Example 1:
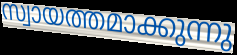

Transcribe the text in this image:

സ്വായത്തമാക്കുന്നു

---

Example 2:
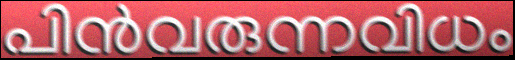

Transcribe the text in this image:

പിൻവരുന്നവിധം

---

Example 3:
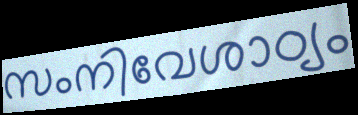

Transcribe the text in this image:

സംനിവേശാഠ്യം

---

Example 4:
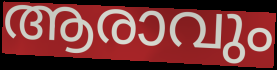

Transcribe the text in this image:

ആരാവും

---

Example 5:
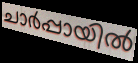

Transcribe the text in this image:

ചാർപ്പായിൽ